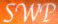
SWP